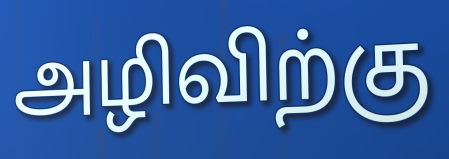
அழிவிற்கு